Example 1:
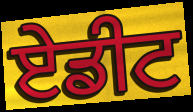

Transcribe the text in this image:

ਏਡੀਟ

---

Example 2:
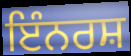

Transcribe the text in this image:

ਇੰਨਰਸ਼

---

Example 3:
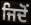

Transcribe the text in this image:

ਜਿਦੋਂ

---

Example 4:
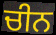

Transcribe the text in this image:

ਚੀਨ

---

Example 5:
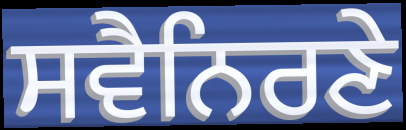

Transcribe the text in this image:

ਸਵੈਨਿਰਣੇ